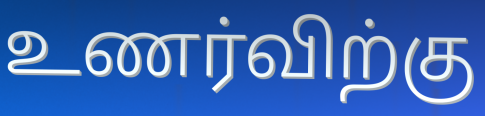
உணர்விற்கு